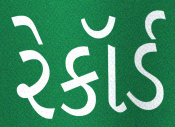
રેકૉર્ડ